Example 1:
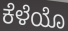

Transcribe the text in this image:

ಕೆಳೆಯೊ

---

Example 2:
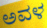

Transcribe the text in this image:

ಅವಳ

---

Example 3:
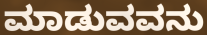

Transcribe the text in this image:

ಮಾಡುವವನು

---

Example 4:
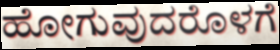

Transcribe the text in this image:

ಹೋಗುವುದರೊಳಗೆ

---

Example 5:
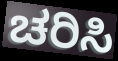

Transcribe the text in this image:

ಚರಿಸಿ